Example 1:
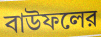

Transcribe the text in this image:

বাউফলের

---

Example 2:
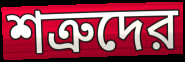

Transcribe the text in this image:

শত্রুদের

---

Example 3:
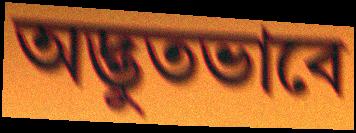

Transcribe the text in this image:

অদ্ভুতভাবে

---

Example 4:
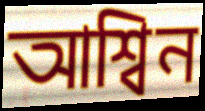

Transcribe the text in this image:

আশ্বিন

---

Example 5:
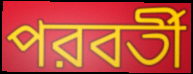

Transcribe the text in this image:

পরবর্তী